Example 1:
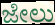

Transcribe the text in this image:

ಜೇಲು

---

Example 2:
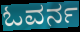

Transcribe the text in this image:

ಓವರ್ನ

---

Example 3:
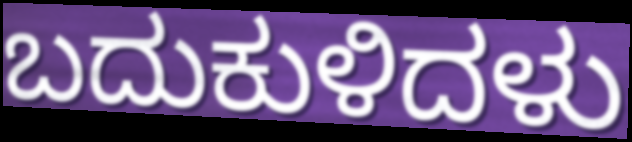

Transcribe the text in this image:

ಬದುಕುಳಿದಳು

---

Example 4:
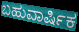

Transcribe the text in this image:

ಬಹುವಾರ್ಷಿಕ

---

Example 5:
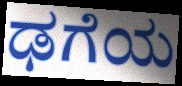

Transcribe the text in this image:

ಢಗೆಯ